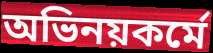
অভিনয়কর্মে